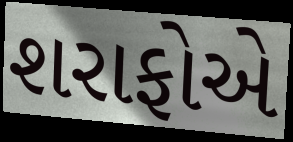
શરાફોએ